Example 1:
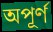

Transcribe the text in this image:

অপূৰ্ণ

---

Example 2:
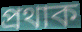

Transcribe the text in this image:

প্ৰথাক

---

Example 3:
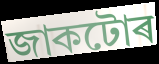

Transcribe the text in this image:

জাকটোৰ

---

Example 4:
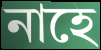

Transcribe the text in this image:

নাহে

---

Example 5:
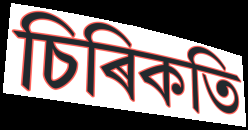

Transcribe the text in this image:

চিৰিকতি